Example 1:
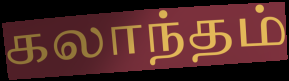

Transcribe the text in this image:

கலாந்தம்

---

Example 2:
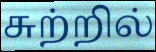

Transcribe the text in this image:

சுற்றில்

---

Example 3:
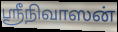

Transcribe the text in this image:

ஸ்ரீநிவாஸன்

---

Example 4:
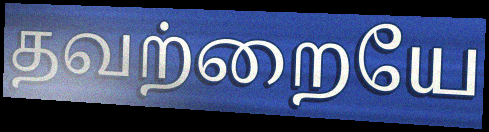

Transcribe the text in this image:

தவற்றையே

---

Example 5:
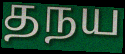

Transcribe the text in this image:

தநய